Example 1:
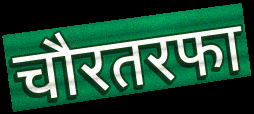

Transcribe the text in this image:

चौरतरफा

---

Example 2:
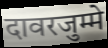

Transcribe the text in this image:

दावरजुम्मे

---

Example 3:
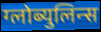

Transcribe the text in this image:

ग्लोब्युलिन्स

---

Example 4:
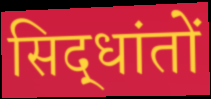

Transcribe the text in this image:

सिद्धांतों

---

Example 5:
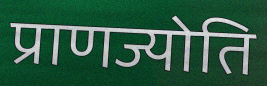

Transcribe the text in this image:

प्राणज्योति